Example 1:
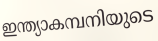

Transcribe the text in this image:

ഇന്ത്യാകമ്പനിയുടെ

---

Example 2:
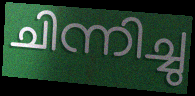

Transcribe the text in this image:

ചിന്നിച്ചു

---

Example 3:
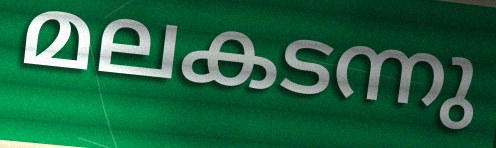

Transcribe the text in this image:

മലകടന്നു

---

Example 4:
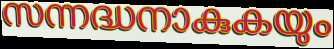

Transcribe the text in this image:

സന്നദ്ധനാകുകയും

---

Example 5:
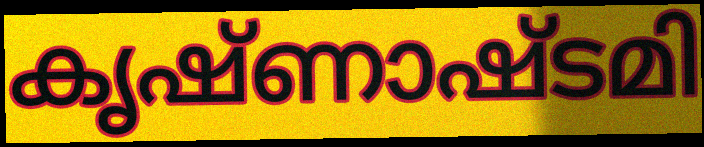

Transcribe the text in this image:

കൃഷ്ണാഷ്ടമി